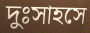
দুঃসাহসে